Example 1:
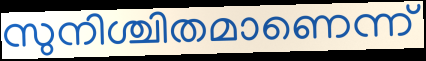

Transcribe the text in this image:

സുനിശ്ചിതമാണെന്ന്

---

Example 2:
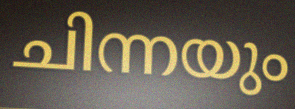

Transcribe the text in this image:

ചിന്നയും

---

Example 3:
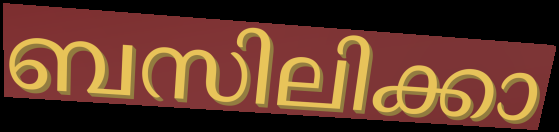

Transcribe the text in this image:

ബസിലിക്കാ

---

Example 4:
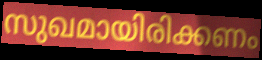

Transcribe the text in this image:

സുഖമായിരിക്കണം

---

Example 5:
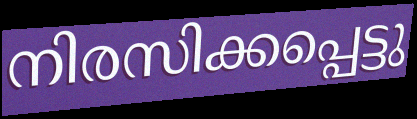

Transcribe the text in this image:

നിരസിക്കപ്പെട്ടു